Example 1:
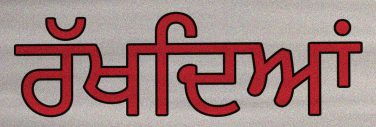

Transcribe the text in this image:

ਰੱਖਦਿਆਂ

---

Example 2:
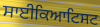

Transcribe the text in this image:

ਸਾਈਕਿਆਟਿਸਟ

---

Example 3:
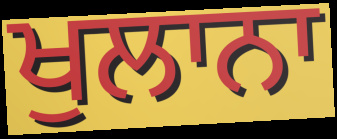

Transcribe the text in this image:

ਖੁਲਾਨਾ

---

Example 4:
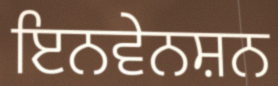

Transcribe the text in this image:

ਇਨਵੇਨਸ਼ਨ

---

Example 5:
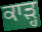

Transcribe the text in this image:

ਕਾੜ੍ਹ